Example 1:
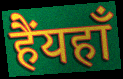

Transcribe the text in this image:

हैंयहाँ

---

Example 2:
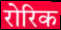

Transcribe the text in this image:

रोरिक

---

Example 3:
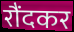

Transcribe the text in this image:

रौंदकर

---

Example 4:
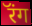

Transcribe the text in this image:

रॅंग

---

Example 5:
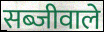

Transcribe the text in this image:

सब्ज़ीवाले